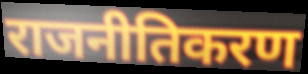
राजनीतिकरण